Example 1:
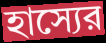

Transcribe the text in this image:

হাস্যের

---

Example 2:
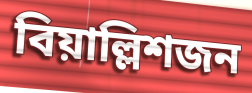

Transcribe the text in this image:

বিয়াল্লিশজন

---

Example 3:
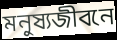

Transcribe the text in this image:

মনুষ্যজীবনে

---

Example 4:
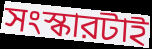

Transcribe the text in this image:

সংস্কারটাই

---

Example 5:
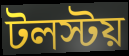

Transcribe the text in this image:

টলস্টয়